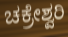
ಚಕ್ರೇಶ್ವರಿ